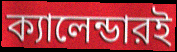
ক্যালেন্ডারই